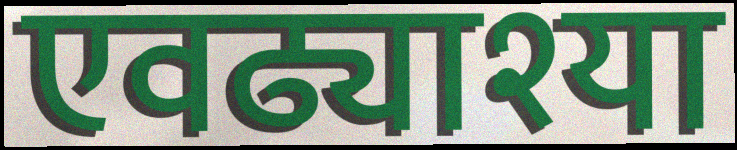
एवढ्याश्या